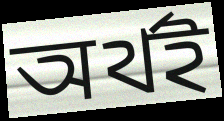
অর্থই